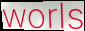
worls